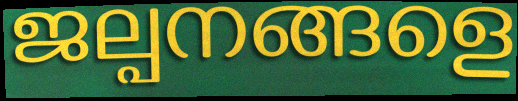
ജല്പനങ്ങളെ